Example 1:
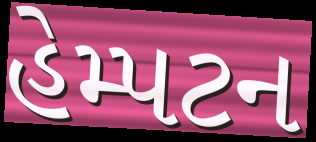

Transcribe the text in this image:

હેમ્પટન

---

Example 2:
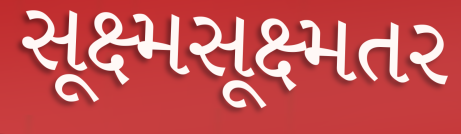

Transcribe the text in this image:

સૂક્ષ્મસૂક્ષ્મતર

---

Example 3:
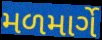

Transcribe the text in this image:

મળમાર્ગે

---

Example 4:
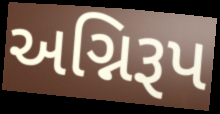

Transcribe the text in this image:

અગ્નિરૂપ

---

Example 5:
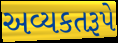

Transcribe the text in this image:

અવ્યકતરૂપે